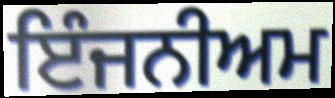
ਇੰਜਨੀਅਮ